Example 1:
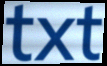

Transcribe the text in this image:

txt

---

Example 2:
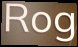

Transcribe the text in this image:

Rog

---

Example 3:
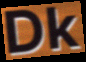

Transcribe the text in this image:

Dk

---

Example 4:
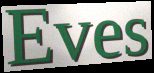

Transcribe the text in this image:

Eves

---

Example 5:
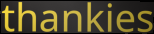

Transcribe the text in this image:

thankies